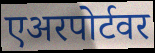
एअरपोर्टवर